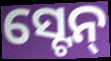
ସ୍ଟେନ୍